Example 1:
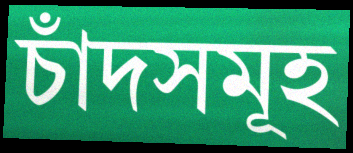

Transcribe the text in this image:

চাঁদসমূহ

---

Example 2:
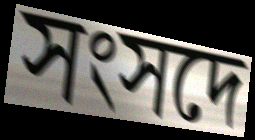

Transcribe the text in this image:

সংসদে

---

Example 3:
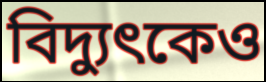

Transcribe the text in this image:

বিদ্যুৎকেও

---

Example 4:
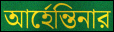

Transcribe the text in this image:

আর্হেন্তিনার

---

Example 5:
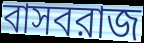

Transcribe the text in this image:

বাসবরাজ